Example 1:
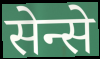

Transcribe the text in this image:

सेन्से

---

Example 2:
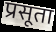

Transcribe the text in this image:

प्रसूता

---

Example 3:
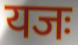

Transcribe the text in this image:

यजः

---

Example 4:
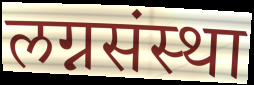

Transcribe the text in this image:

लग्नसंस्था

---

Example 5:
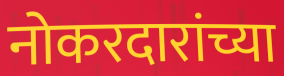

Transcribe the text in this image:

नोकरदारांच्या